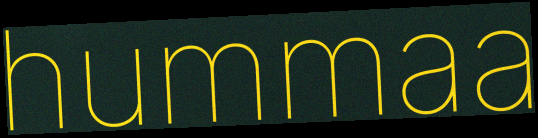
hummaa